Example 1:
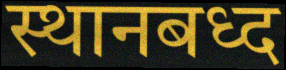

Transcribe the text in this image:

स्थानबध्द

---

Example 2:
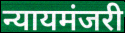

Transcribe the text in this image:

न्यायमंजरी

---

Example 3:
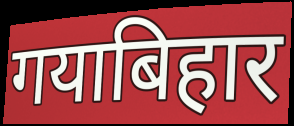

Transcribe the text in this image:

गयाबिहार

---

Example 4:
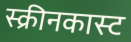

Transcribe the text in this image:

स्क्रीनकास्ट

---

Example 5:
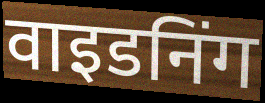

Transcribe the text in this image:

वाइडनिंग